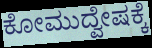
ಕೋಮುದ್ವೇಷಕ್ಕೆ